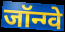
जॉन्ग्वे